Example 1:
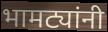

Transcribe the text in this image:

भामट्यांनी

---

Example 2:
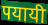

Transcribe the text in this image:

पयायी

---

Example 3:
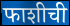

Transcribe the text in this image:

फाशीची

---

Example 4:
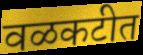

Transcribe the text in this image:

वळकटीत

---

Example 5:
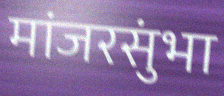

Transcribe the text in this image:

मांजरसुंभा